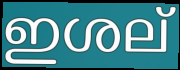
ഇശല്